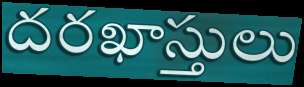
దరఖాస్తులు